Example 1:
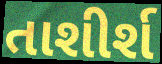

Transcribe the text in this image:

તાશીર્શ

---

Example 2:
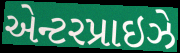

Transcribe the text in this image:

એન્ટરપ્રાઇઝે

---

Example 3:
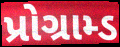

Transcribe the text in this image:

પ્રોગ્રામ્ડ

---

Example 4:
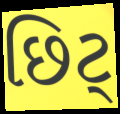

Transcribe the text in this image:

છિટ્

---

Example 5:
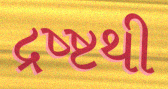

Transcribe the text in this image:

દ્રષ્ષ્ટથી